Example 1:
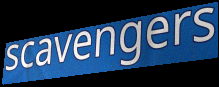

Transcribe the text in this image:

scavengers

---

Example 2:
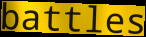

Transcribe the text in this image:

battles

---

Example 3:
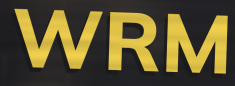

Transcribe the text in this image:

WRM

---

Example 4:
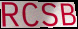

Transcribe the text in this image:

RCSB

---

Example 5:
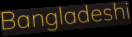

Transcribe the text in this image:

Bangladeshi